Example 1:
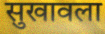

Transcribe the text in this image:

सुखावला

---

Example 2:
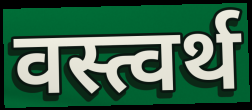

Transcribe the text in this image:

वस्त्वर्थ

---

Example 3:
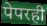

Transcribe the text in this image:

पेपरही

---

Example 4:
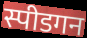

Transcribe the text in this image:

स्पीडगन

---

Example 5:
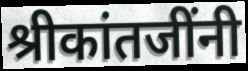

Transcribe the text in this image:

श्रीकांतजींनी